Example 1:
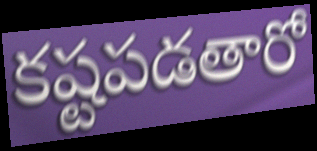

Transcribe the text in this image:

కష్టపడతారో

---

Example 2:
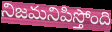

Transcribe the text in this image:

నిజమనిపిస్తోంది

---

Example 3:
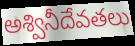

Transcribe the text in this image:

అశ్వినీదేవతలు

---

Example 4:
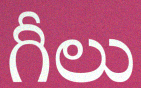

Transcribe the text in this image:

గీలు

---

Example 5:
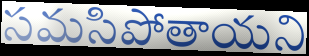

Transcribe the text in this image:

సమసిపోతాయని